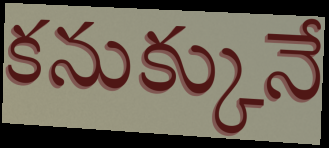
కనుక్కునే